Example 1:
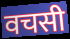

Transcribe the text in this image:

वचसी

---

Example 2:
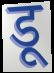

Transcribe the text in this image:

डू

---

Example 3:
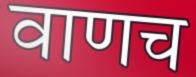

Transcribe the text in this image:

वाणच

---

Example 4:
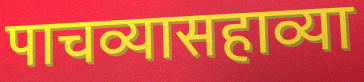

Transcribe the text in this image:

पाचव्यासहाव्या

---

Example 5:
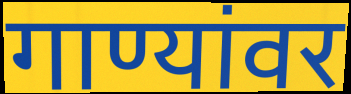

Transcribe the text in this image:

गाण्यांवर